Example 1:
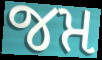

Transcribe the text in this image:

જપ્ત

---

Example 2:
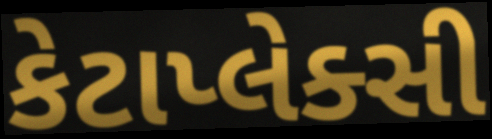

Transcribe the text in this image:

કેટાપ્લેક્સી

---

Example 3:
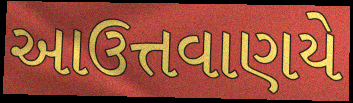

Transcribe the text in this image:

આઉત્તવાણયે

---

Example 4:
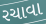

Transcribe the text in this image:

રચાવા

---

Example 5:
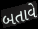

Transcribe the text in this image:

બતાવે